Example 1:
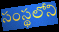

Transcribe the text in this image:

సంస్థలోని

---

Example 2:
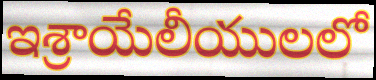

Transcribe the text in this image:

ఇశ్రాయేలీయులలో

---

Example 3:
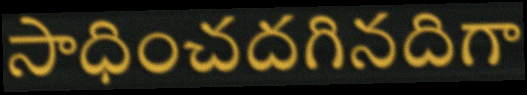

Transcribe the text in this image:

సాధించదగినదిగా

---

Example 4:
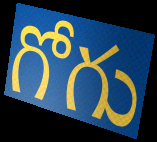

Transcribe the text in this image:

గోగు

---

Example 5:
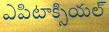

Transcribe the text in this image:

ఎపిటాక్సియల్